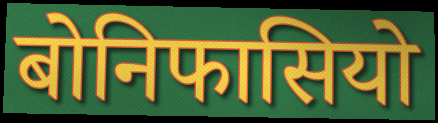
बोनिफासियो